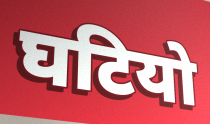
घटियो